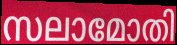
സലാമോതി